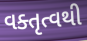
વક્તૃત્વથી